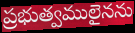
ప్రభుత్వములైనను